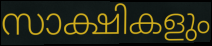
സാക്ഷികളും